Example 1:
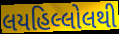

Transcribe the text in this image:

લયહિલ્લોલથી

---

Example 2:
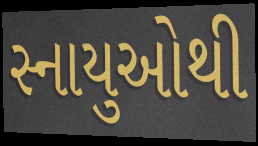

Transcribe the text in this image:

સ્નાયુઓથી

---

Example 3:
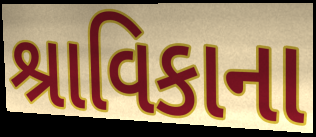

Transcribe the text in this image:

શ્રાવિકાના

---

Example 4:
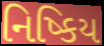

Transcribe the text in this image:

નિષ્કિય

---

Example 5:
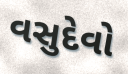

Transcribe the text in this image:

વસુદેવો